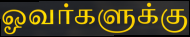
ஓவர்களுக்கு